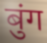
बुंग